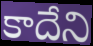
కాదేని